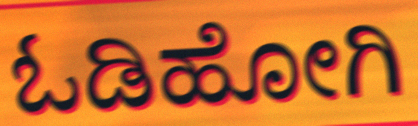
ಓಡಿಹೋಗಿ